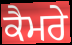
ਕੈਮਰੇ